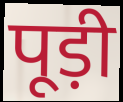
पूड़ी